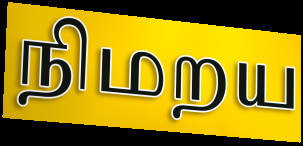
நிமறய